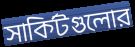
সার্কিটগুলোর